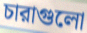
চারাগুলো